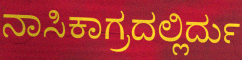
ನಾಸಿಕಾಗ್ರದಲ್ಲಿರ್ದು